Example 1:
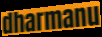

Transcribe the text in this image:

dharmanu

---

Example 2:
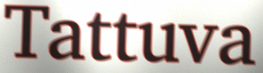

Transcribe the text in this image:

Tattuva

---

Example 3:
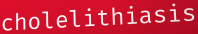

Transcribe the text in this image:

cholelithiasis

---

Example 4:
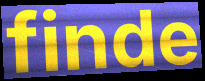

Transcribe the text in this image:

finde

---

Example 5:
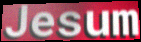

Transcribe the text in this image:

Jesum